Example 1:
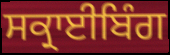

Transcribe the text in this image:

ਸਕ੍ਰਾਈਬਿੰਗ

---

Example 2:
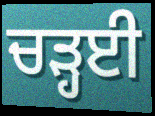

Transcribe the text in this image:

ਚੜ੍ਹਈ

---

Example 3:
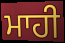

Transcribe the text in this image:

ਮਾਹੀ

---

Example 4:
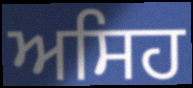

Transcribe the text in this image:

ਅਸਿਹ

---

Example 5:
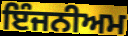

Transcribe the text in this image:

ਇੰਜਨੀਅਮ